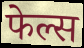
फेल्स